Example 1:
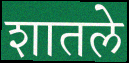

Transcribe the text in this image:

शातले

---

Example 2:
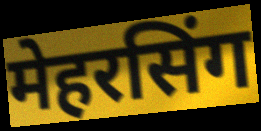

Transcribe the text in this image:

मेहरसिंग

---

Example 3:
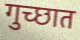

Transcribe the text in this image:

गुच्छात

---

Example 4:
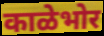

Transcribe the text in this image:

काळेभोर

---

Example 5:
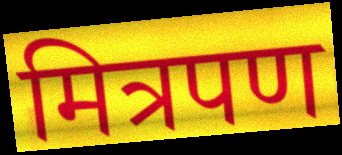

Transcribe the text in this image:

मित्रपण